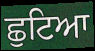
ਛੁਟਿਆ